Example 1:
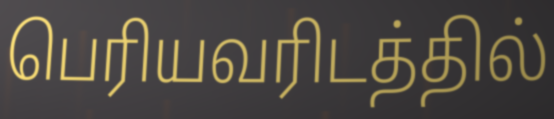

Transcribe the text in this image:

பெரியவரிடத்தில்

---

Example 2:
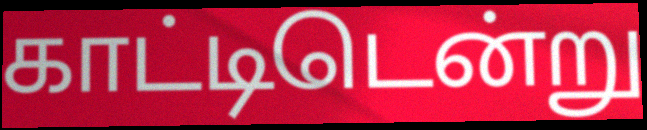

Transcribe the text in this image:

காட்டிடென்று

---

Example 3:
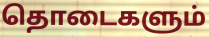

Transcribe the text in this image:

தொடைகளும்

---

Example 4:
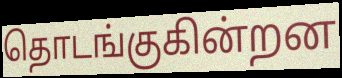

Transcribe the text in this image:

தொடங்குகின்றன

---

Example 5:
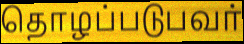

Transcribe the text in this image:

தொழப்படுபவர்